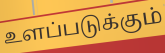
உளப்படுக்கும்